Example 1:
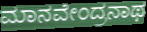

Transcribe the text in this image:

ಮಾನವೇಂದ್ರನಾಥ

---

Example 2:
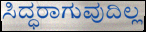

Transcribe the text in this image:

ಸಿದ್ಧರಾಗುವುದಿಲ್ಲ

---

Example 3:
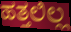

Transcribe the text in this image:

ಹತ್ತಲಿಲ್ಲ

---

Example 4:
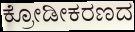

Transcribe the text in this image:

ಕ್ರೋಡೀಕರಣದ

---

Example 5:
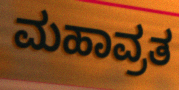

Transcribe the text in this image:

ಮಹಾವ್ರತ